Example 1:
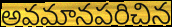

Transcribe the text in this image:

అవమానపరిచిన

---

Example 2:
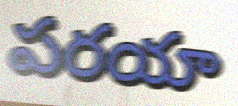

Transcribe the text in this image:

పరయా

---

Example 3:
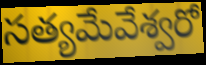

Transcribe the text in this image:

సత్యమేవేశ్వరో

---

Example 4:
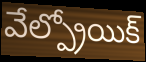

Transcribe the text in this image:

వేల్ప్రోయిక్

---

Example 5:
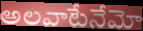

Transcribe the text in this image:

అలవాటేనేమో